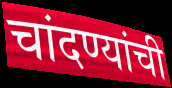
चांदण्यांची